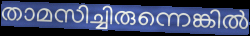
താമസിച്ചിരുന്നെങ്കിൽ